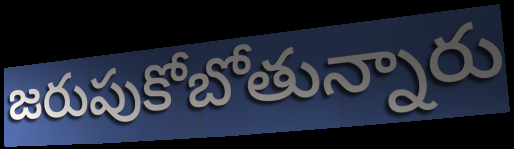
జరుపుకోబోతున్నారు